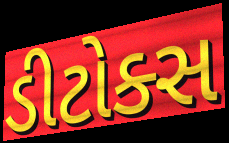
ડીટોક્સ